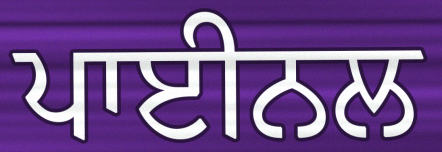
ਪਾਈਨਲ